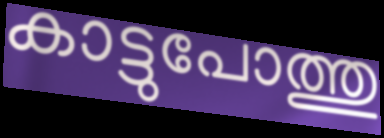
കാട്ടുപോത്തു